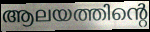
ആലയത്തിന്റെ